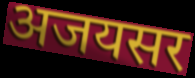
अजयसर